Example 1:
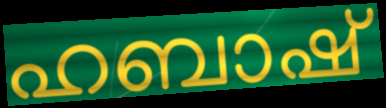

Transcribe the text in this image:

ഹബാഷ്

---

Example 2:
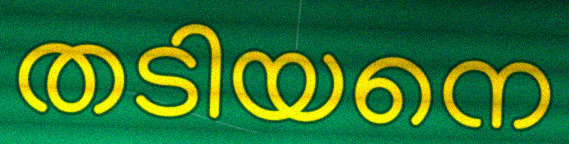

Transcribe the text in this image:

തടിയനെ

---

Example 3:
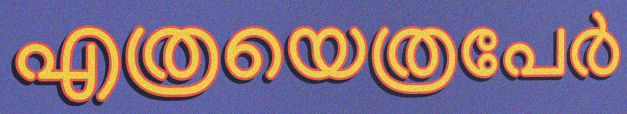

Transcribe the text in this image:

എത്രയെത്രപേർ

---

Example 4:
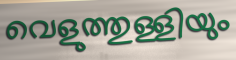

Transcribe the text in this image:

വെളുത്തുള്ളിയും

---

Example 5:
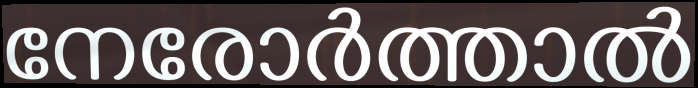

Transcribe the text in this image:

നേരോർത്താൽ